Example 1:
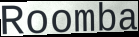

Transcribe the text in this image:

Roomba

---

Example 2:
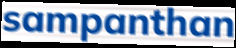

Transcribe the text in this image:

sampanthan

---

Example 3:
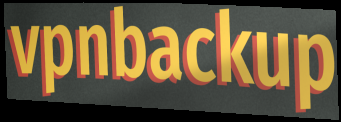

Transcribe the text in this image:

vpnbackup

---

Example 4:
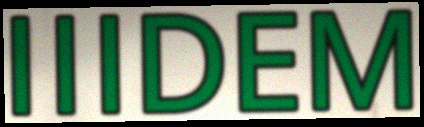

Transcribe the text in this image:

IIIDEM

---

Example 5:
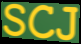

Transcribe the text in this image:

SCJ